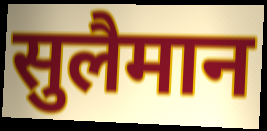
सुलैमान